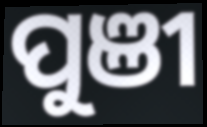
ପୁଞୀ